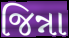
જિન્ના